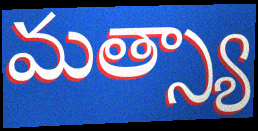
మత్స్యా